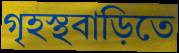
গৃহস্থবাড়িতে